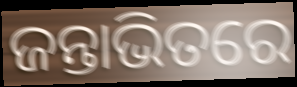
ଜନ୍ତାଭିତରେ